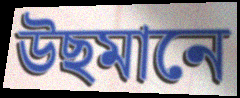
উছমানে